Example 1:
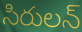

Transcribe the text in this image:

సిరులన్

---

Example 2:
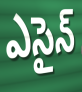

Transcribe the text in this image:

ఎసైన్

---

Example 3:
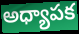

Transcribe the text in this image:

అధ్యాపక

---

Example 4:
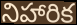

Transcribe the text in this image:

నిహారిక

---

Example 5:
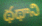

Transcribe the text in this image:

థథాని